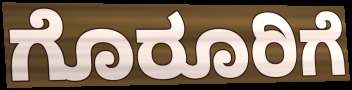
ಗೊರೂರಿಗೆ